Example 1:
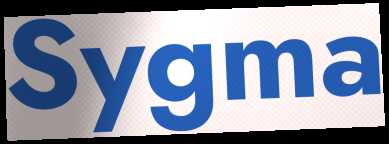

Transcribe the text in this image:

Sygma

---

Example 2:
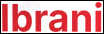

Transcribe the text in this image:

Ibrani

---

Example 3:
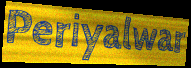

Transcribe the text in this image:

Periyalwar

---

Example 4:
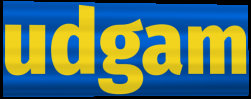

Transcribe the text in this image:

udgam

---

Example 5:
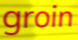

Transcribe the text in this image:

groin